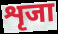
शृजा